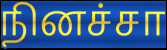
நினச்சா